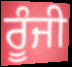
ਰੂੰਜੀ